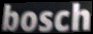
bosch